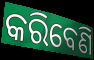
କରିବେଣି